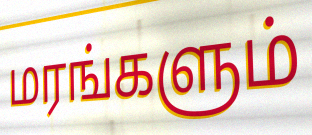
மரங்களும்